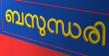
ബസുന്ധരി